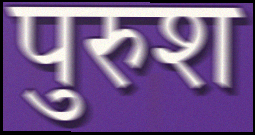
पुरुश